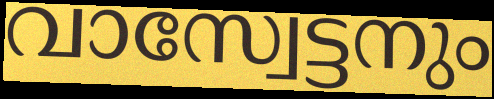
വാസ്വേട്ടനും